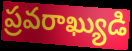
ప్రవరాఖ్యుడి